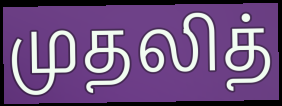
முதலித்